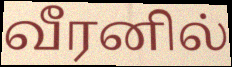
வீரனில்